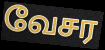
வேசர